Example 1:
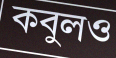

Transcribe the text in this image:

কবুলও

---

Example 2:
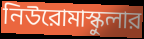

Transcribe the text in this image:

নিউরোমাস্কুলার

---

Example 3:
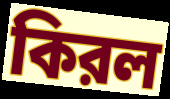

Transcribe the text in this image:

কিরল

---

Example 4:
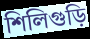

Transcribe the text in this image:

শিলিগুড়ি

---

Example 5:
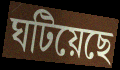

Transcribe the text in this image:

ঘটিয়েছে